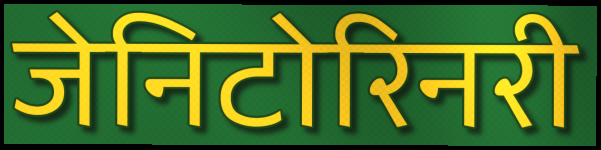
जेनिटोरिनरी